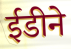
ईडीने